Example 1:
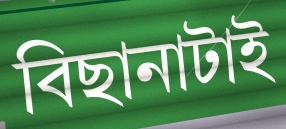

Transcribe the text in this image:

বিছানাটাই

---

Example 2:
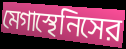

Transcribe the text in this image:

মেগাস্থেনিসের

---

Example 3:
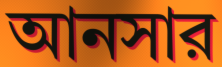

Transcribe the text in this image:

আনসার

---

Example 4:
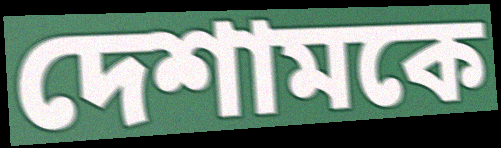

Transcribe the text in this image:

দেশামকে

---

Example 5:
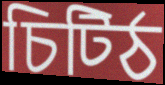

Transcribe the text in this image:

চিট্ঠি